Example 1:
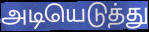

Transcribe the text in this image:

அடியெடுத்து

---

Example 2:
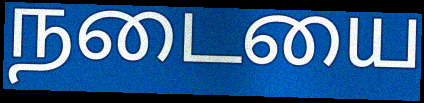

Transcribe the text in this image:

நடையை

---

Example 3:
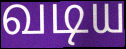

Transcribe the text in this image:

வடிய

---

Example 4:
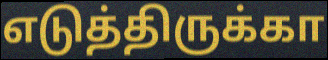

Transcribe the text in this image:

எடுத்திருக்கா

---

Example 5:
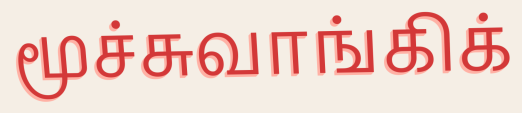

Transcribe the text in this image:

மூச்சுவாங்கிக்